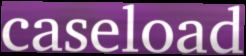
caseload